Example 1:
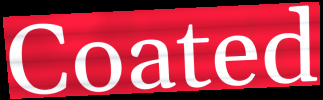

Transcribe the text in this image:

Coated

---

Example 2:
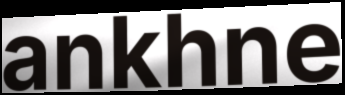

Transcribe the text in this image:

ankhne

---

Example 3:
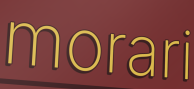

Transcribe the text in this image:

morari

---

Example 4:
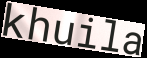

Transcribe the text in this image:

khuila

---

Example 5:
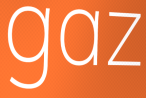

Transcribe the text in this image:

gaz